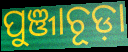
ପୁଞ୍ଜାଚୂଡ଼ା